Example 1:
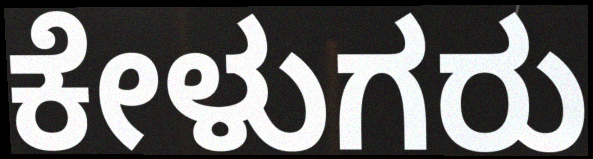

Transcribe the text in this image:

ಕೇಳುಗರು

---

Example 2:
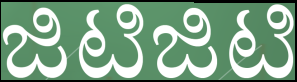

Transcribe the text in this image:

ಜಿಟಿಜಿಟಿ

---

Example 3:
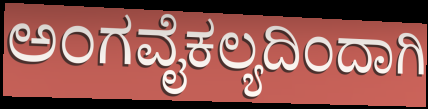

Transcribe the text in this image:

ಅಂಗವೈಕಲ್ಯದಿಂದಾಗಿ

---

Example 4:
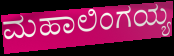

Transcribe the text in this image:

ಮಹಾಲಿಂಗಯ್ಯ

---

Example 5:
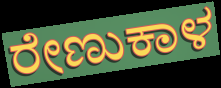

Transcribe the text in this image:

ರೇಣುಕಾಳ